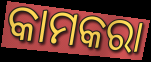
କାମକରା